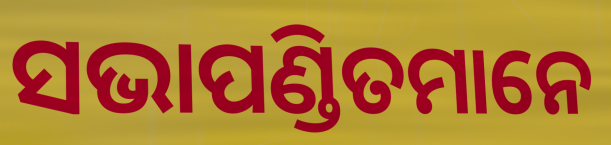
ସଭାପଣ୍ଡିତମାନେ